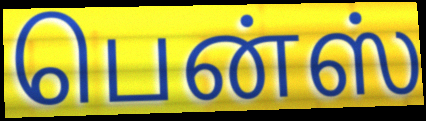
பென்ஸ்